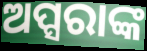
ଅପ୍ସରାଙ୍କ